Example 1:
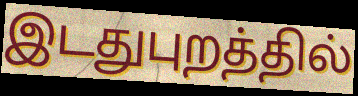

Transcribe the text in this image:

இடதுபுறத்தில்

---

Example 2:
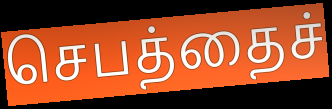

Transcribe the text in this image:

செபத்தைச்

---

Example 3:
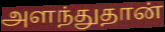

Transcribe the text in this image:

அளந்துதான்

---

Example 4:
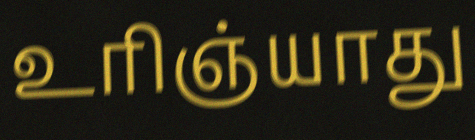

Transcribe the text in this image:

உரிஞ்யாது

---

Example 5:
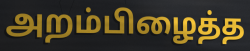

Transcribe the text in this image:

அறம்பிழைத்த